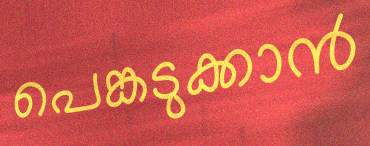
പെങ്കടുക്കാൻ